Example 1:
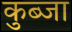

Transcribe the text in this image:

कुब्जा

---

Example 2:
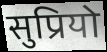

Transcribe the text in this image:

सुप्रियो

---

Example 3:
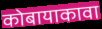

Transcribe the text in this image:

कोबायाकावा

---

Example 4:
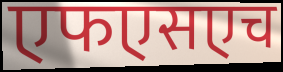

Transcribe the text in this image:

एफएसएच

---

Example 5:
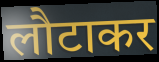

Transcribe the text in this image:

लौटाकर